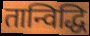
तान्विद्धि